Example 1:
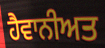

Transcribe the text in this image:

ਹੈਵਾਨੀਅਤ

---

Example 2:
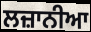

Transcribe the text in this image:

ਲਜ਼ਾਨੀਆ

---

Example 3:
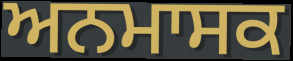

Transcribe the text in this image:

ਅਨਮਾਸਕ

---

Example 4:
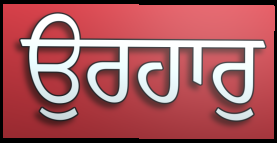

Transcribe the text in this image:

ਉਰਹਾਰੁ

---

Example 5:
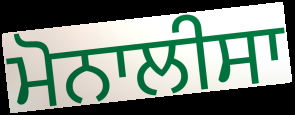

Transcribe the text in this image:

ਮੋਨਾਲੀਸਾ